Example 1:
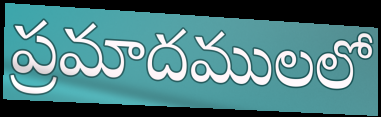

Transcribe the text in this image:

ప్రమాదములలో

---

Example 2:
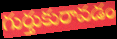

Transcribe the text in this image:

గుర్తుకురావడం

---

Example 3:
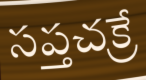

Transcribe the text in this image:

సప్తచక్రే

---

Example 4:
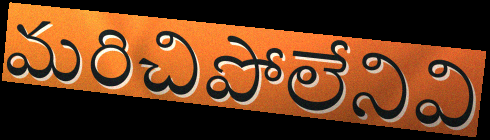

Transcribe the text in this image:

మరిచిపోలేనివి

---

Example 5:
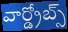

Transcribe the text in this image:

వార్డ్రోబ్స్